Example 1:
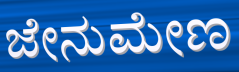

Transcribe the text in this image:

ಜೇನುಮೇಣ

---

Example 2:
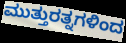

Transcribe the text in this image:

ಮುತ್ತುರತ್ನಗಳಿಂದ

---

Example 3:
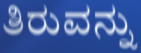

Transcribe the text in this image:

ತಿರುವನ್ನು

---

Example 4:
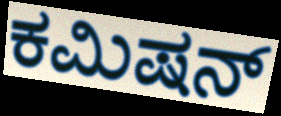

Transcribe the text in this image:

ಕಮಿಷನ್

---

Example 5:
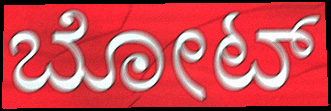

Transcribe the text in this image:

ಬೋಟ್